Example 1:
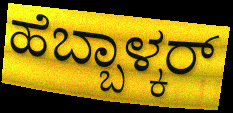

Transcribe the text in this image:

ಹೆಬ್ಬಾಳ್ಕರ್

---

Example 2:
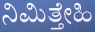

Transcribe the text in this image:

ನಿಮಿತ್ತೇಹಿ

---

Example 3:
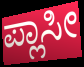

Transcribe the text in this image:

ಪ್ಲಾಸೀ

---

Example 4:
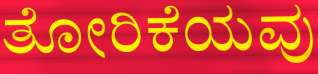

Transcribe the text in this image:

ತೋರಿಕೆಯವು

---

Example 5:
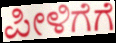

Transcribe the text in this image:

ಪೀಳಿಗೆಗೆ